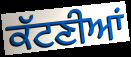
ਕੱਟਣੀਆਂ